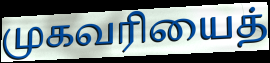
முகவரியைத்